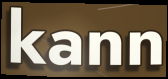
kann